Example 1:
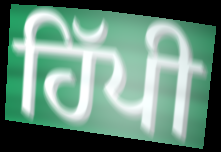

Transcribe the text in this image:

ਹਿੱਪੀ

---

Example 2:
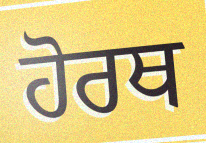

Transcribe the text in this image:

ਹੋਰਥ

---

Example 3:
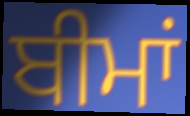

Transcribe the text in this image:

ਬੀਮਾਂ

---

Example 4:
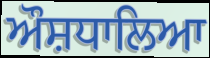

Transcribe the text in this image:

ਔਸ਼ਧਾਲਿਆ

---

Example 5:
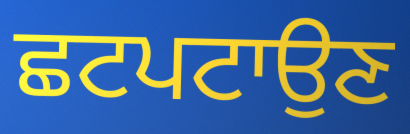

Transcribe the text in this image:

ਛਟਪਟਾਉਣ